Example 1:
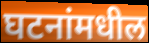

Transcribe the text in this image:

घटनांमधील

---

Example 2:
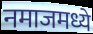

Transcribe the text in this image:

नमाजमध्ये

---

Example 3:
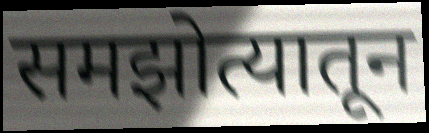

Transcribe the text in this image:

समझोत्यातून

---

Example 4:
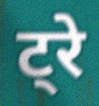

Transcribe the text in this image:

ट्रे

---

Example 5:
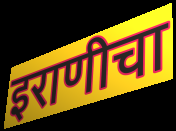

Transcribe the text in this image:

इराणीचा